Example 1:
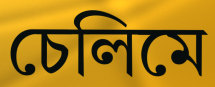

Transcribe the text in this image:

চেলিমে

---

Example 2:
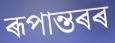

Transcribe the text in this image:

ৰূপান্তৰৰ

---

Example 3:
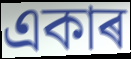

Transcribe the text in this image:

একাৰ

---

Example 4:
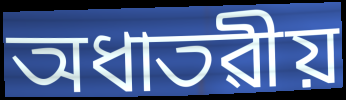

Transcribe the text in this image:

অধাতৱীয়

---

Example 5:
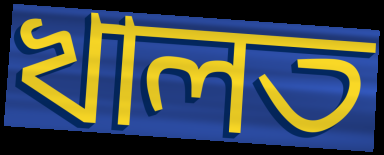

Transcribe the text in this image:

খালত